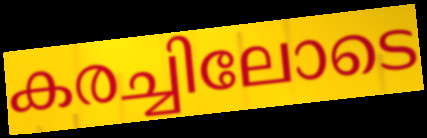
കരച്ചിലോടെ